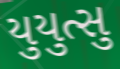
યુયુત્સુ